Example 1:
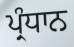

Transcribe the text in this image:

ਪ੍ਰੰਧਾਨ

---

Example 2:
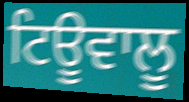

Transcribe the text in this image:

ਟਿਊਵਾਲੂ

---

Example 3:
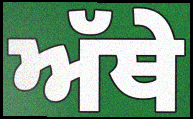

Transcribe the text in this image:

ਅੱਥੇ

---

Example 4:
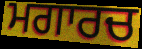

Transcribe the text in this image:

ਮਗਾਰਚ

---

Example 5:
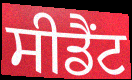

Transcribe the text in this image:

ਸੀਡੈਂਟ